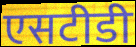
एसटीडी